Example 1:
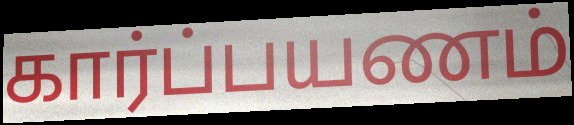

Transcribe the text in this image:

கார்ப்பயணம்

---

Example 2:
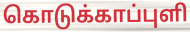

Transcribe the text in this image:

கொடுக்காப்புளி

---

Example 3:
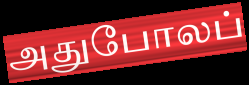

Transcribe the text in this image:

அதுபோலப்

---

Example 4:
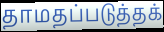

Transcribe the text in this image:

தாமதப்படுத்தக்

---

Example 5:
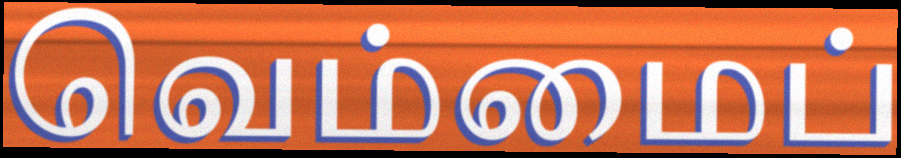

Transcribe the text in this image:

வெம்மைப்